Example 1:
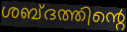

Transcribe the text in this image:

ശബ്ദത്തിന്റെ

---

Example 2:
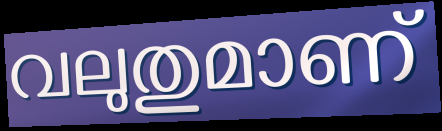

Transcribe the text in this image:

വലുതുമാണ്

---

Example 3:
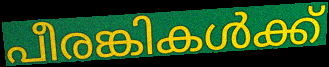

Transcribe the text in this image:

പീരങ്കികൾക്ക്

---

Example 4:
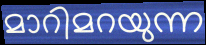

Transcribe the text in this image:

മാറിമറയുന്ന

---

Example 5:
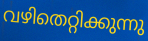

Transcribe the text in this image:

വഴിതെറ്റിക്കുന്നു